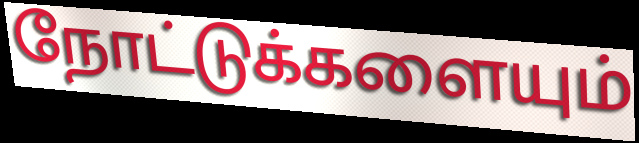
நோட்டுக்களையும்